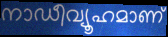
നാഡീവ്യൂഹമാണ്